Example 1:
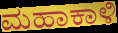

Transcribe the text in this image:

ಮಹಾಕಾಳಿ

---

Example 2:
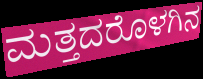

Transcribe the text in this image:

ಮತ್ತದರೊಳಗಿನ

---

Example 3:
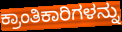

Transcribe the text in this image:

ಕ್ರಾಂತಿಕಾರಿಗಳನ್ನು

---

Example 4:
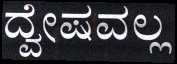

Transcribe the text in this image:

ದ್ವೇಷವಲ್ಲ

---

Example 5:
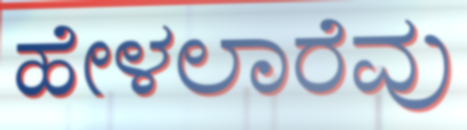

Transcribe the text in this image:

ಹೇಳಲಾರೆವು